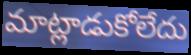
మాట్లాడుకోలేదు